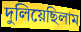
দুলিয়েছিলাম